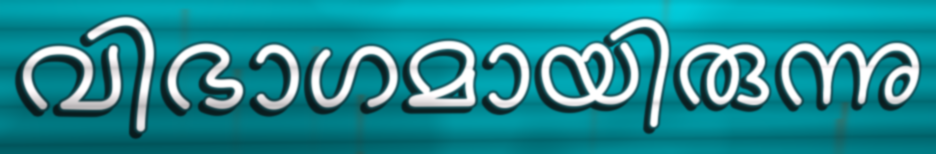
വിഭാഗമായിരുന്നു